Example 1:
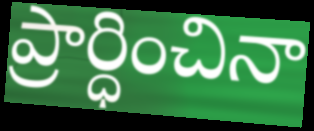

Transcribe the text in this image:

ప్రార్ధించినా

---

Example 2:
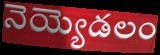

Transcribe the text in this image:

నెయ్యెడలం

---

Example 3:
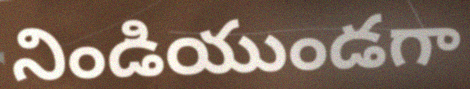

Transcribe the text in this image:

నిండియుండగా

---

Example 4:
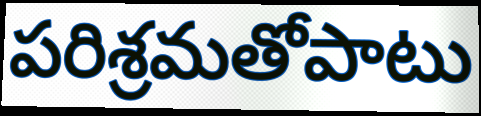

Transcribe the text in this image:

పరిశ్రమతోపాటు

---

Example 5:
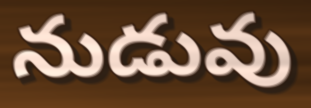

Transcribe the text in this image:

నుడువు